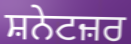
ਸ਼ਨੇਟਜ਼ਰ